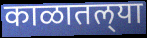
काळातल्या